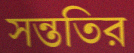
সন্ততির